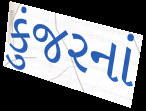
કુંજરનાં